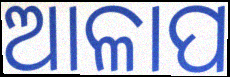
ଆଳାପ